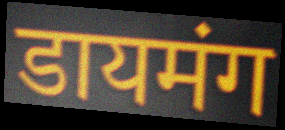
डायमंग